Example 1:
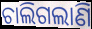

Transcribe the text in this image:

ଚାଲିଗଲାଣି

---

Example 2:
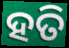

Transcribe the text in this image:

ହତି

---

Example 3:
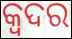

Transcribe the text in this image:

କ୍ୱଦର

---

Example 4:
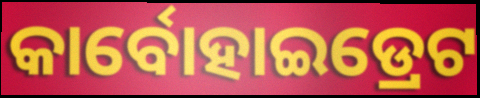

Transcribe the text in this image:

କାର୍ବୋହାଇଡ୍ରେଟ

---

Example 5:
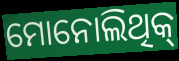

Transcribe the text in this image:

ମୋନୋଲିଥିକ୍